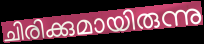
ചിരിക്കുമായിരുന്നു